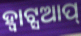
ହ୍ବାଟ୍ସଆପ୍